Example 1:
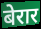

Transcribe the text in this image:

बेरार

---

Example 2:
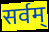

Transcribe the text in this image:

सर्वम्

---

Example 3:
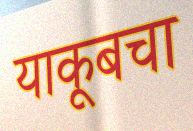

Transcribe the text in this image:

याकूबचा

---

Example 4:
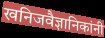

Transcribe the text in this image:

खनिजवैज्ञानिकांनी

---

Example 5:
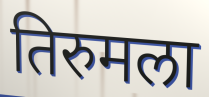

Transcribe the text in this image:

तिरुमला